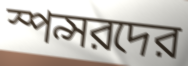
স্পন্সরদের